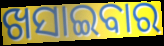
ଖସାଇବାର